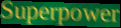
Superpower